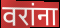
वरांना